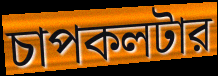
চাপকলটার